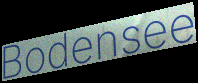
Bodensee